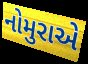
નોમુરાએ